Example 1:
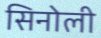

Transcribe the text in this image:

सिनोली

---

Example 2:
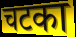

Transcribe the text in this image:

चटका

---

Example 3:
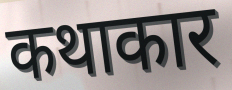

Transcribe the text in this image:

कथाकार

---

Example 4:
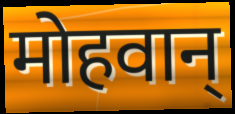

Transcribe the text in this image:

मोहवान्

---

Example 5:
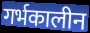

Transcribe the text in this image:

गर्भकालीन